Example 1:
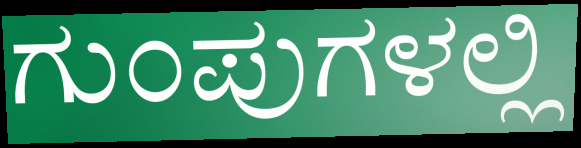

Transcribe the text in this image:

ಗುಂಪುಗಳಲ್ಲಿ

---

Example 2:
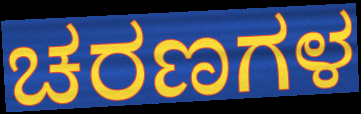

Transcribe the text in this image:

ಚರಣಗಳ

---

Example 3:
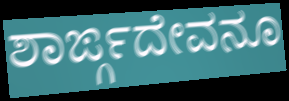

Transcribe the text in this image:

ಶಾರ್ಙ್ಗದೇವನೂ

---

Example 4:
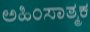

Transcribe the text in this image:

ಅಹಿಂಸಾತ್ಮಕ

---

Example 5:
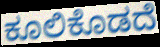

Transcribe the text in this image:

ಕೂಲಿಕೊಡದೆ